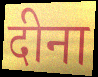
दीना